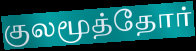
குலமூத்தோர்